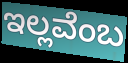
ಇಲ್ಲವೆಂಬ